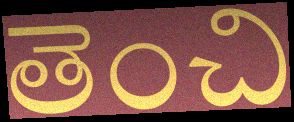
తెంచి